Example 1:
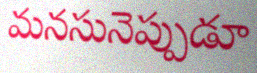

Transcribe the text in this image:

మనసునెప్పుడూ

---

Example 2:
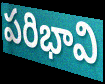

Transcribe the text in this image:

పరిభావి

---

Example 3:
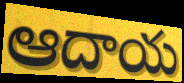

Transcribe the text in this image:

ఆదాయ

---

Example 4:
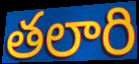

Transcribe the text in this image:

తలారి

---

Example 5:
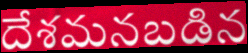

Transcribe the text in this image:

దేశమనబడిన